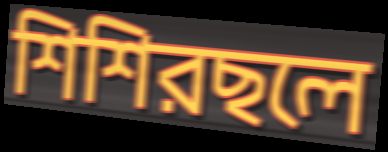
শিশিরছলে